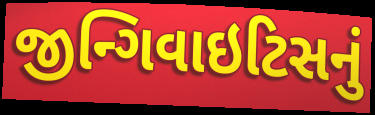
જીન્ગિવાઇટિસનું